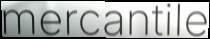
mercantile